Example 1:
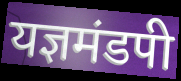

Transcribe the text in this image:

यज्ञमंडपी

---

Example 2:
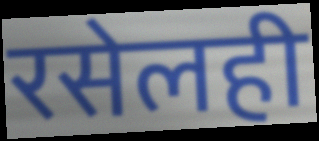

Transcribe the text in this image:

रसेलही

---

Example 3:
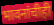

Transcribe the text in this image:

भावनांचीही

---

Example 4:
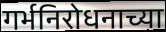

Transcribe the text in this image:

गर्भनिरोधनाच्या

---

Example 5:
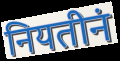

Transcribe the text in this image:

नियतीनं